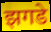
झगडे